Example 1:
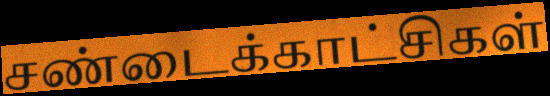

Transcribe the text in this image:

சண்டைக்காட்சிகள்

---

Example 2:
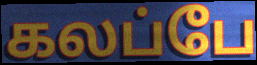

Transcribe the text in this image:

கலப்பே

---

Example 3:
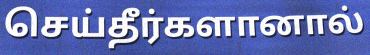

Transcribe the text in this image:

செய்தீர்களானால்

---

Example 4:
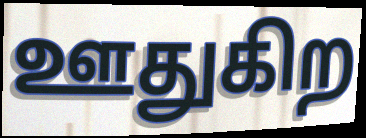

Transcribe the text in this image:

ஊதுகிற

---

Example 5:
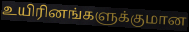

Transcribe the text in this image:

உயிரினங்களுக்குமான